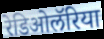
रेडिओलॅरिया